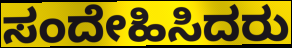
ಸಂದೇಹಿಸಿದರು